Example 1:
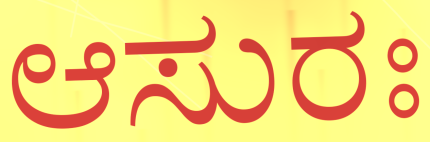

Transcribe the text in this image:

ಆಸುರಃ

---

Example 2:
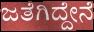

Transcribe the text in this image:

ಜತೆಗಿದ್ದೇನೆ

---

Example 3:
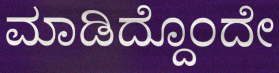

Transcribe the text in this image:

ಮಾಡಿದ್ದೊಂದೇ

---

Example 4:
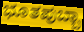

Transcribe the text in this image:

ಭೂತಪುಬ್ಬಾ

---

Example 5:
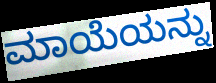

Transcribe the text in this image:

ಮಾಯೆಯನ್ನು